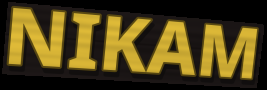
NIKAM